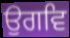
ਉਗਵਿ